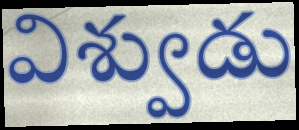
విశ్వుడు